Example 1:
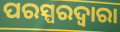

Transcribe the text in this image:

ପରସ୍ପରଦ୍ୱାରା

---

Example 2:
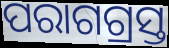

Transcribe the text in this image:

ପରାଗଗ୍ରସ୍ତ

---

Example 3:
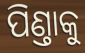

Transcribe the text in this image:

ପିଣ୍ତାକୁ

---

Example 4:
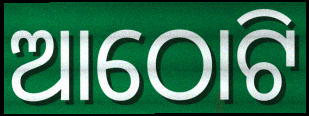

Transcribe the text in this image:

ଆଠୋଟି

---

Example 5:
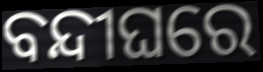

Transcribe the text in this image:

ବନ୍ଦୀଘରେ